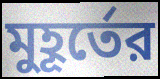
মুহূর্তের